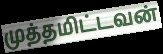
முத்தமிட்டவன்